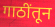
गाठींतून